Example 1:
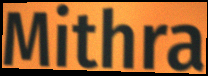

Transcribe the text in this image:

Mithra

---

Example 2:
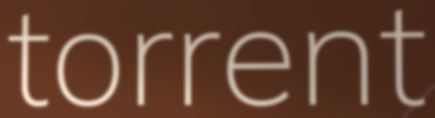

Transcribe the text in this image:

torrent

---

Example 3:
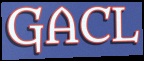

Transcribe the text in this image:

GACL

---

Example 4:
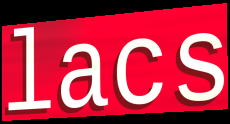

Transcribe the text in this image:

lacs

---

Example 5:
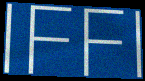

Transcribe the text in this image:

IFFI